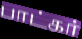
பாட்கர்